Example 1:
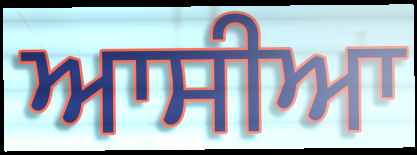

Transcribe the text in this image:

ਆਸੀਆ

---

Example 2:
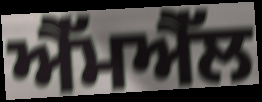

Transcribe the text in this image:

ਐੱਮਐੱਲ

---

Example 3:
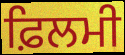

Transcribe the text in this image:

ਫ਼ਿਲਮੀ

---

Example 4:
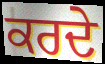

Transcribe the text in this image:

ਕਰਦੇ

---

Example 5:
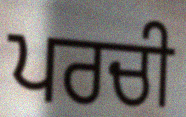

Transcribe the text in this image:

ਪਰਚੀ